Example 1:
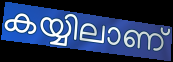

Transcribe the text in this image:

കയ്യിലാണ്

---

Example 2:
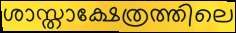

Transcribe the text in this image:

ശാസ്താക്ഷേത്രത്തിലെ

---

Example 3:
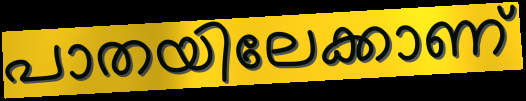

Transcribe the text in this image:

പാതയിലേക്കാണ്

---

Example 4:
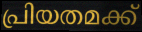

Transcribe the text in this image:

പ്രിയതമക്ക്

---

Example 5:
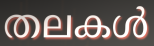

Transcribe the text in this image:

തലകൾ